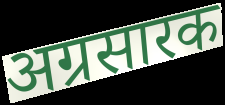
अग्रसारक